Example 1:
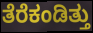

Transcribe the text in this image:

ತೆರೆಕಂಡಿತ್ತು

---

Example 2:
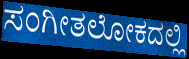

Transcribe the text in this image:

ಸಂಗೀತಲೋಕದಲ್ಲಿ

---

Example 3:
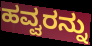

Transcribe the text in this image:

ಹವ್ವರನ್ನು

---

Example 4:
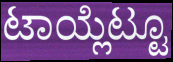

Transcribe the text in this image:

ಟಾಯ್ಲೆಟ್ಟೂ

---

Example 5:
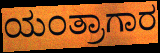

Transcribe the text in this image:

ಯಂತ್ರಾಗಾರ